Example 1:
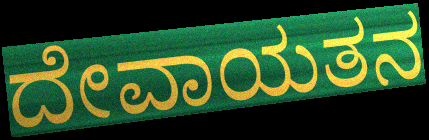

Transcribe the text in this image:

ದೇವಾಯತನ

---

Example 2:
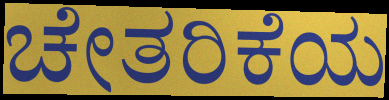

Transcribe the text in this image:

ಚೇತರಿಕೆಯ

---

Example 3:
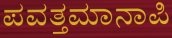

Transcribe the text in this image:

ಪವತ್ತಮಾನಾಪಿ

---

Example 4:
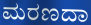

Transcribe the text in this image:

ಮರಣದಾ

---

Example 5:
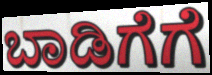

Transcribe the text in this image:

ಬಾಡಿಗೆಗೆ